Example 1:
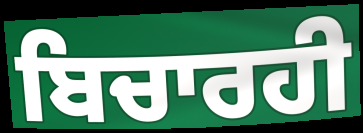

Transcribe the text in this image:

ਬਿਚਾਰਹੀ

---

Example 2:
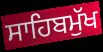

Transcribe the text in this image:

ਸਾਹਿਬਮੁੱਖ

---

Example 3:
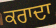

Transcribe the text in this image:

ਕਰਾਦਾ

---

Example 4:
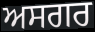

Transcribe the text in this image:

ਅਸਗਰ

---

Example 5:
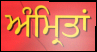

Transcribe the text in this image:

ਅੰਮ੍ਰਿਤਾਂ